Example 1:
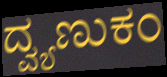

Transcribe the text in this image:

ದ್ವ್ಯಣುಕಂ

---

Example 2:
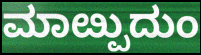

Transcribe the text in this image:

ಮಾೞ್ಪುದುಂ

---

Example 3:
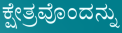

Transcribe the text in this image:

ಕ್ಷೇತ್ರವೊಂದನ್ನು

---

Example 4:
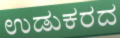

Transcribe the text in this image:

ಉಡುಕರದ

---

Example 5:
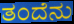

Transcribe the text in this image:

ತಂದೆನು